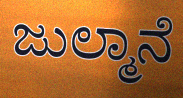
ಜುಲ್ಮಾನೆ